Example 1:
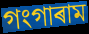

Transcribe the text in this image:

গংগাৰাম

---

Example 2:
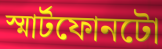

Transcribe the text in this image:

স্মাৰ্টফোনটো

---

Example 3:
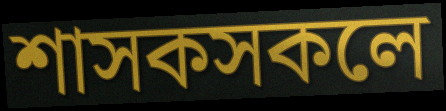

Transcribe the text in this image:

শাসকসকলে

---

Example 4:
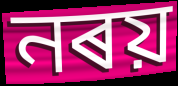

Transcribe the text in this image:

নৰয়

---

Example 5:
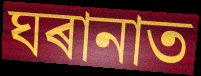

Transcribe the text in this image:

ঘৰানাত